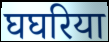
घघरिया